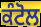
ਕੰਟੋਲ